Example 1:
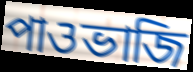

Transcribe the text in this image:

পাওভাজি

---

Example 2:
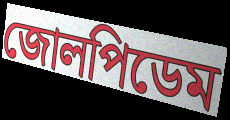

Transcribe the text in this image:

জোলপিডেম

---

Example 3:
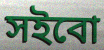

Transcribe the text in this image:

সইবো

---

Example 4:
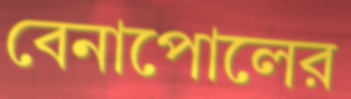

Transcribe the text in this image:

বেনাপোলের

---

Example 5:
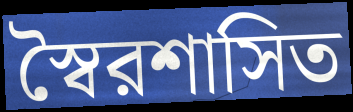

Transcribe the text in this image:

স্বৈরশাসিত